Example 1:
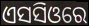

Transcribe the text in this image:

ଏସସିଓରେ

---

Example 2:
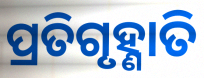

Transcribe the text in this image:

ପ୍ରତିଗୃହ୍ଣାତି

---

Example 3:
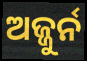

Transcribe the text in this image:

ଅଜ୍ଜୁର୍ନ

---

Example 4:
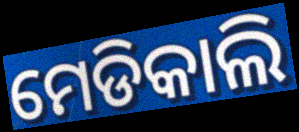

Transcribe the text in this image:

ମେଡିକାଲି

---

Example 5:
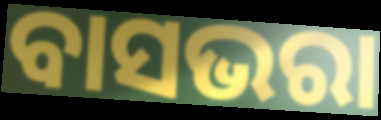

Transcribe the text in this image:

ବାସଭରା